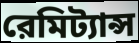
রেমিট্যান্স